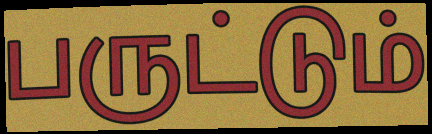
பருட்டும்